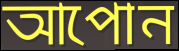
আপোন